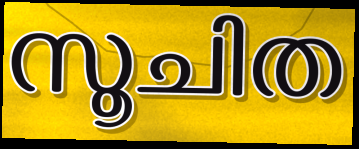
സൂചിത